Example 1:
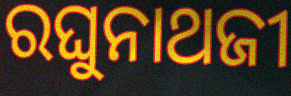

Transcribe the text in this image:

ରଘୁନାଥଜୀ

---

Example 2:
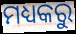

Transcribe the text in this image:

ମଧ୍ୟକରୁ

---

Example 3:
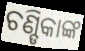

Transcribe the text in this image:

ଚଣ୍ଡିକାଙ୍କ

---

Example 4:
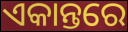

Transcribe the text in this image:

ଏକାନ୍ତରେ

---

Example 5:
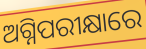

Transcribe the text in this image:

ଅଗ୍ନିପରୀକ୍ଷାରେ